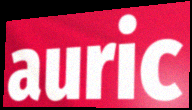
auric